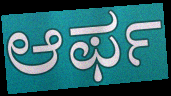
ಆರ್ಫ